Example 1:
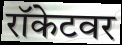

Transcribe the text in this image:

रॉकेटवर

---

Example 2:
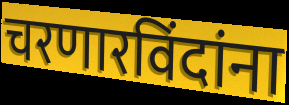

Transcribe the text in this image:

चरणारविंदांना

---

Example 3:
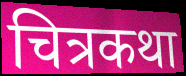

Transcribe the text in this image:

चित्रकथा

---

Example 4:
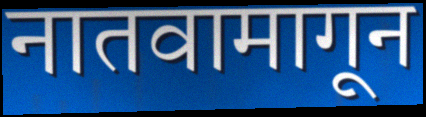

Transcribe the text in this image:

नातवामागून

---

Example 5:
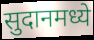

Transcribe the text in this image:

सुदानमध्ये